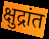
क्षुद्रांत